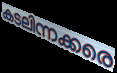
കടലിന്നക്കരെ